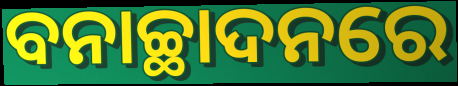
ବନାଚ୍ଛାଦନରେ